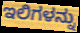
ಇಲಿಗಳನ್ನು